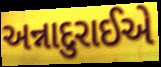
અન્નાદુરાઈએ